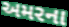
અમરના